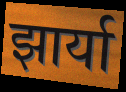
झार्या